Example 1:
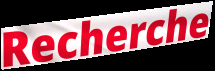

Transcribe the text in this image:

Recherche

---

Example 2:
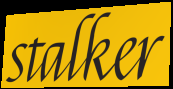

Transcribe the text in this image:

stalker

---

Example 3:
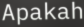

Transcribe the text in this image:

Apakah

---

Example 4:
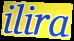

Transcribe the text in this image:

ilira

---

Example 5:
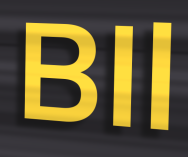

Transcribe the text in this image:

BIl